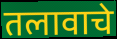
तलावाचे